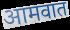
आमवात